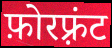
फ़ोरफ़्रंट